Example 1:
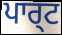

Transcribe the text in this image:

ਪਾਰ੍ਟ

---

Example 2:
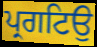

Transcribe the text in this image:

ਪ੍ਰਗਟਿਉ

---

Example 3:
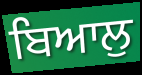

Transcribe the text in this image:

ਬਿਆਲੁ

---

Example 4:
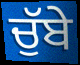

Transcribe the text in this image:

ਚੁੱਬੇ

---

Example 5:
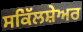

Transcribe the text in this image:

ਸਕਿੱਲਸ਼ੇਅਰ